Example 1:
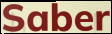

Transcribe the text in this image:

Saber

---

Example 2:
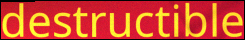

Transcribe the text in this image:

destructible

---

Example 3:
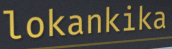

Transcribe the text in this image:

lokankika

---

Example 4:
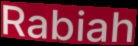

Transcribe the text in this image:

Rabiah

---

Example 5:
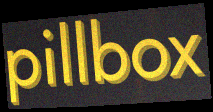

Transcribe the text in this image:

pillbox